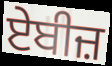
ਏਬੀਜ਼